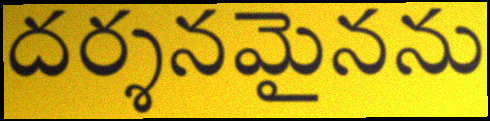
దర్శనమైనను